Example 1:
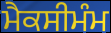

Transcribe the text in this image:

ਮੈਕਸੀਮੰਮ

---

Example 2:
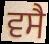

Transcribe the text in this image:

ਵਸੈ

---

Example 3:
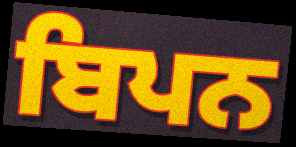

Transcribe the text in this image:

ਬਿਪਨ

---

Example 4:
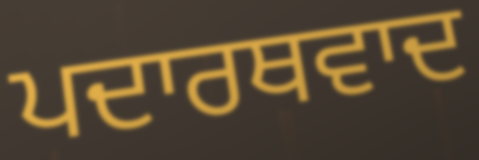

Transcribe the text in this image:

ਪਦਾਰਥਵਾਦ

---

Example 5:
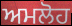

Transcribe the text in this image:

ਅਮਲੋਹ